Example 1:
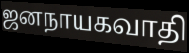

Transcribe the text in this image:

ஜனநாயகவாதி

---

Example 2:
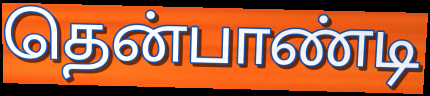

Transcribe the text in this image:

தென்பாண்டி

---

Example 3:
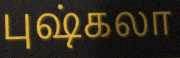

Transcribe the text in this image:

புஷ்கலா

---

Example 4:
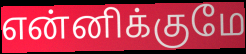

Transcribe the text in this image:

என்னிக்குமே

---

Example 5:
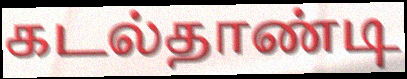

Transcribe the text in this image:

கடல்தாண்டி